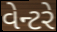
વેન્ટરે